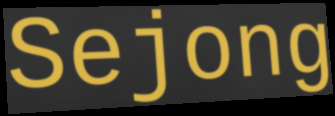
Sejong